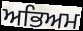
ਅਭਿਅਮ